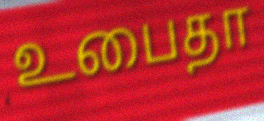
உபைதா